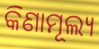
କିଣାମୂଲ୍ୟ